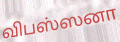
விபஸ்ஸனா